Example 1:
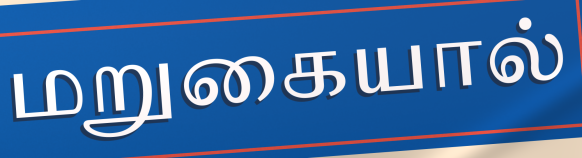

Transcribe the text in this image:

மறுகையால்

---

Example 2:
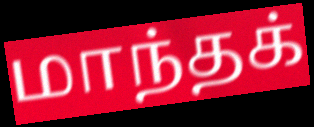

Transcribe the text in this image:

மாந்தக்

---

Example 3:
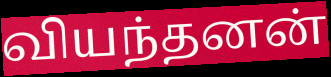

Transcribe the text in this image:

வியந்தனன்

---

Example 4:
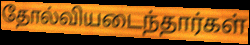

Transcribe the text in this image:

தோல்வியடைந்தார்கள்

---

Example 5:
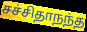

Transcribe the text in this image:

சச்சிதாநந்த